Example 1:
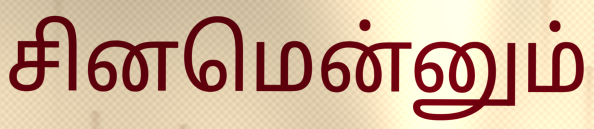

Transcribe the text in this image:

சினமென்னும்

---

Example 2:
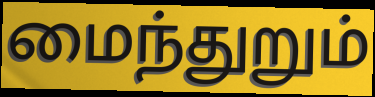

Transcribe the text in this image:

மைந்துறும்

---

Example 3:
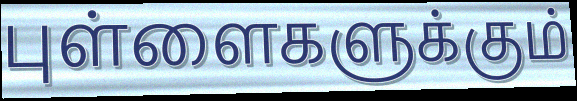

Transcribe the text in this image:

புள்ளைகளுக்கும்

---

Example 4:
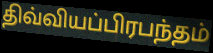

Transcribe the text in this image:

திவ்வியப்பிரபந்தம்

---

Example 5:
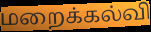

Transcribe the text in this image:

மறைக்கல்வி